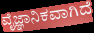
ವೈಜ್ಞಾನಿಕವಾಗಿದೆ